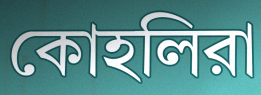
কোহলিরা